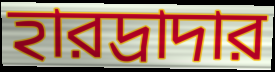
হারদ্রাদার